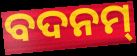
ବଦନମ୍